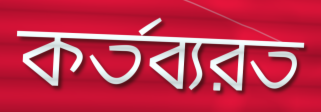
কর্তব্যরত